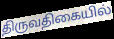
திருவதிகையில்